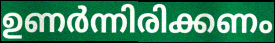
ഉണർന്നിരിക്കണം